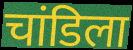
चांडिला